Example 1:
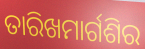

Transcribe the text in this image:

ତାରିଖମାର୍ଗଶିର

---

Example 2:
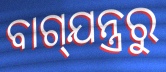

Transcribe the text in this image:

ବାଗ୍‌ଯନ୍ତ୍ରରୁ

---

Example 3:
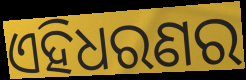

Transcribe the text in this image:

ଏହିଧରଣର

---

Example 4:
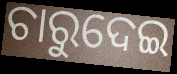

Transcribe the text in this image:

ଚାରୁଦେଇ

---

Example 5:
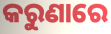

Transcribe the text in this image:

କରୁଣାରେ